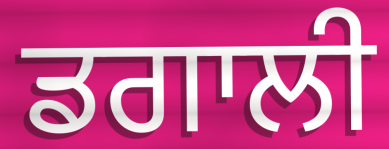
ਡਗਾਲੀ